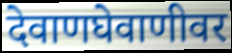
देवाणघेवाणीवर